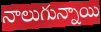
నాలుగున్నాయి